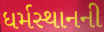
ધર્મસ્થાનની